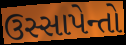
ઉસ્સાપેન્તો